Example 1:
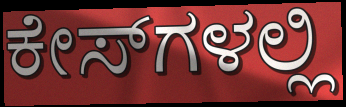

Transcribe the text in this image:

ಕೇಸ್‌ಗಳಲ್ಲಿ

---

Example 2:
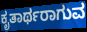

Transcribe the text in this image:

ಕೃತಾರ್ಥರಾಗುವ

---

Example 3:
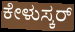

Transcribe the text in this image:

ಕೇಳುಸ್ಕರ್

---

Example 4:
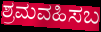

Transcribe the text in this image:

ಶ್ರಮವಹಿಸಬ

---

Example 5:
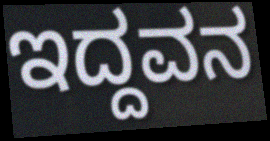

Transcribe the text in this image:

ಇದ್ದವನ